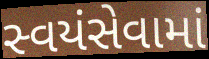
સ્વયંસેવામાં